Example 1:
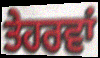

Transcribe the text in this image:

ਤੇਹਰਵਾਂ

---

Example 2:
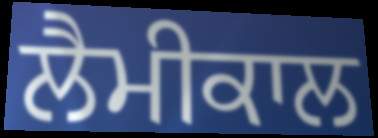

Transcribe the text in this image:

ਲੈਮੀਕਾਲ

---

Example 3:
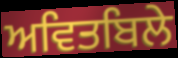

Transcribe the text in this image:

ਅਵਿਤਬਿਲੇ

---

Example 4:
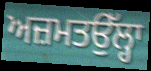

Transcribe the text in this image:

ਅਜ਼ਮਤਉੱਲ੍ਹਾ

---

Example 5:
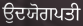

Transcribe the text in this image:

ਉਦਯੋਗਪਤੀ